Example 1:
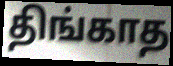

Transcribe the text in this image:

திங்காத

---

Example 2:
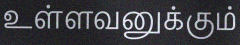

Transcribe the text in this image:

உள்ளவனுக்கும்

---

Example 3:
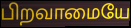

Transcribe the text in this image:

பிறவாமையே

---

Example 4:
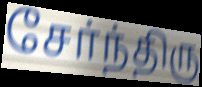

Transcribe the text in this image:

சேர்ந்திரு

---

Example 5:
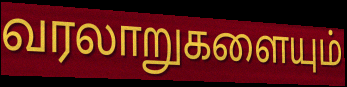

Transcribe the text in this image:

வரலாறுகளையும்